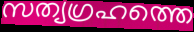
സത്യഗ്രഹത്തെ